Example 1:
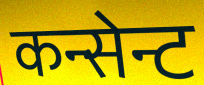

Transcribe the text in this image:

कन्सेन्ट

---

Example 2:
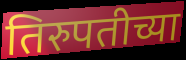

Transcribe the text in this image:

तिरुपतीच्या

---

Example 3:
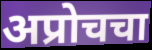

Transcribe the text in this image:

अप्रोचचा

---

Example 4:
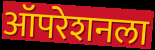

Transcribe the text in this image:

ऑपरेशनला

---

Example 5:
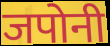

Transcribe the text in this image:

जपोनी